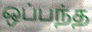
ஒப்பந்த